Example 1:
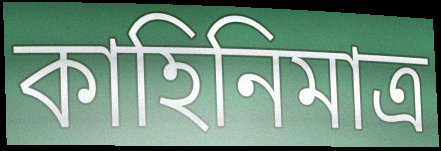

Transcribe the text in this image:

কাহিনিমাত্র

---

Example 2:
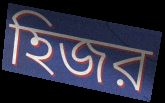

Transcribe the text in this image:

হিজর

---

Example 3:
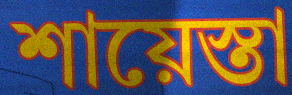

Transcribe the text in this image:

শায়েস্তা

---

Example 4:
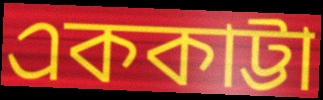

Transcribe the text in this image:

এককাট্টা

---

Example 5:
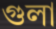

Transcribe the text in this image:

গুলা